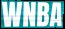
WNBA